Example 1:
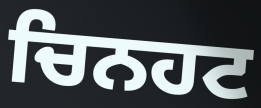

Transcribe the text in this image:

ਚਿਨਹਟ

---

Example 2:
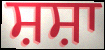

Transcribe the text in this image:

ਸ਼ਸ਼ਾ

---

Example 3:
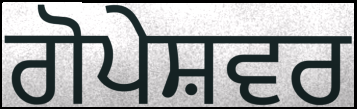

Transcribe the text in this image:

ਗੋਪੇਸ਼ਵਰ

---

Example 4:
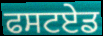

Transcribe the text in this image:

ਫਸਟਏਡ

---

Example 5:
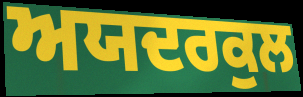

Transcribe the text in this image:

ਅਯਦਰਕੁਲ